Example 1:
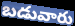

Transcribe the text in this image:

బడువారు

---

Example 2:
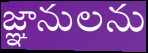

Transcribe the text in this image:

జ్ఞానులను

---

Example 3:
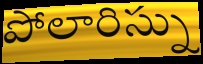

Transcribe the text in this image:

పోలారిస్ను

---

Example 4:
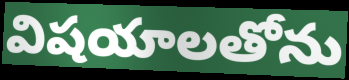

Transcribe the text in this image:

విషయాలతోను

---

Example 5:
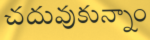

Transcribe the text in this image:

చదువుకున్నాం